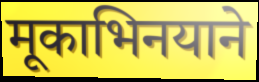
मूकाभिनयाने